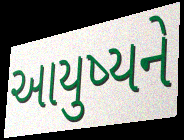
આયુષ્યને